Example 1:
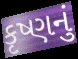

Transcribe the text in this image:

કૃષ્ણનું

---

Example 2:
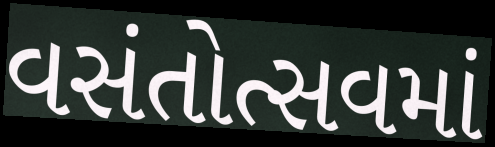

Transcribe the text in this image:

વસંતોત્સવમાં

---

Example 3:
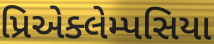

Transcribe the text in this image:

પ્રિએક્લેમ્પસિયા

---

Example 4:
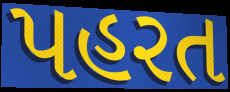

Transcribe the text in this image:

પહરત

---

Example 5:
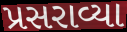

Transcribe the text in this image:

પ્રસરાવ્યા